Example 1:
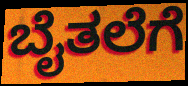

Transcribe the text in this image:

ಬೈತಲೆಗೆ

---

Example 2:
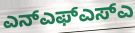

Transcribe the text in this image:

ಎನ್ಎಫ್ಎಸ್ಎ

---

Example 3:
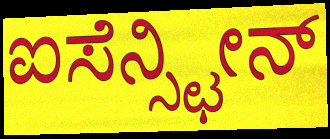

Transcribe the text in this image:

ಐಸೆನ್ಸ್ಟೀನ್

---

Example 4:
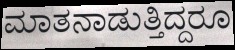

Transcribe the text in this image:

ಮಾತನಾಡುತ್ತಿದ್ದರೂ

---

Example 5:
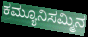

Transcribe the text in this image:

ಕಮ್ಯೂನಿಸಮ್ಮಿನ